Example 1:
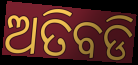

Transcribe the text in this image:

ଅତିବଡି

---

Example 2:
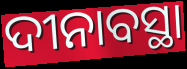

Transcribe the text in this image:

ଦୀନାବସ୍ଥା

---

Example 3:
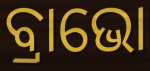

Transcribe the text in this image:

ବ୍ରାଭୋ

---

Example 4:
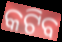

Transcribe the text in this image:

କଟିବ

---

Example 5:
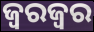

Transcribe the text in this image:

ଜ୍ୱରଜ୍ୱର